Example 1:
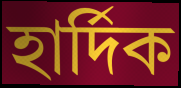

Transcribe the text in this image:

হার্দিক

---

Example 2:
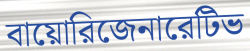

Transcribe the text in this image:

বায়োরিজেনারেটিভ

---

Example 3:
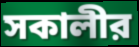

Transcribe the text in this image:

সকালীর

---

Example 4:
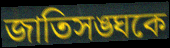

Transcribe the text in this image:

জাতিসঙ্ঘকে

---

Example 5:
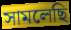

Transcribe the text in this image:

সামলেছি